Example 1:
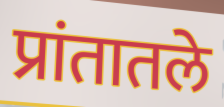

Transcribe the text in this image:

प्रांतातले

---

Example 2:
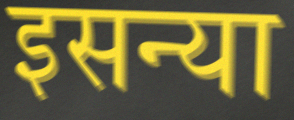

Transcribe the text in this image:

इसन्या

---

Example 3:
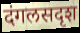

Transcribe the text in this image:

दंगलसदृश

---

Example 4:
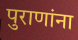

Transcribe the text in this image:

पुराणांना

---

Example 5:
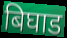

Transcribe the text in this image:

बिघाड